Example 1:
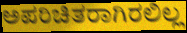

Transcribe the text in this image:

ಅಪರಿಚಿತರಾಗಿರಲಿಲ್ಲ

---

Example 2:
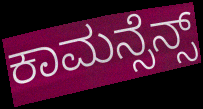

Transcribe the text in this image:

ಕಾಮನ್ಸೆನ್ಸ್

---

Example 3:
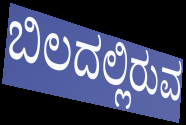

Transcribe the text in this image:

ಬಿಲದಲ್ಲಿರುವ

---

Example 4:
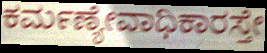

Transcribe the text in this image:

ಕರ್ಮಣ್ಯೇವಾಧಿಕಾರಸ್ತೇ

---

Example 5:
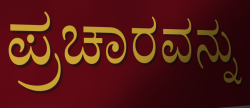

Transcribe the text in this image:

ಪ್ರಚಾರವನ್ನು